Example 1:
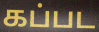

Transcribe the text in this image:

கப்பட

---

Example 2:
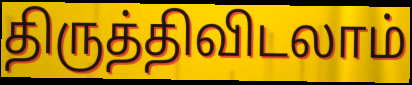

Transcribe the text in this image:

திருத்திவிடலாம்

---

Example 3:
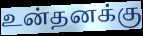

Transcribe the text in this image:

உன்தனக்கு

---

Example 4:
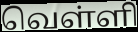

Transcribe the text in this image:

வெள்ளி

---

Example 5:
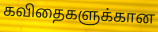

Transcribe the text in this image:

கவிதைகளுக்கான